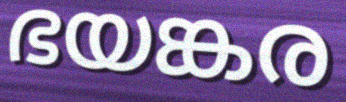
ഭയങ്കര